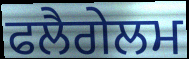
ਫਲੈਗੇਲਮ